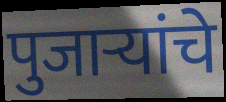
पुजाऱ्यांचे